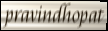
pravindhopat